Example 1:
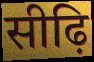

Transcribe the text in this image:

सीढ़ि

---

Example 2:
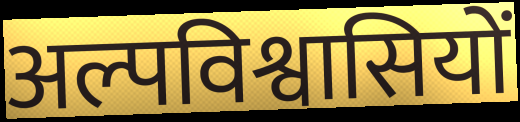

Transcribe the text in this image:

अल्पविश्वासियों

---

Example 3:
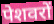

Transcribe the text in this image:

पेशवरों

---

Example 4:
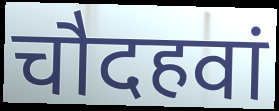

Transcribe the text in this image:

चौदहवां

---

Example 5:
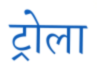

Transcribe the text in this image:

ट्रोला